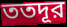
ততদূর